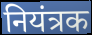
नियंत्रक